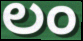
ಲಂ